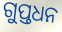
ଗୁପ୍ତଧନ